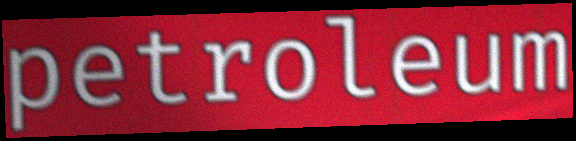
petroleum